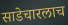
साडेचारलाच